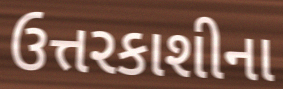
ઉત્તરકાશીના